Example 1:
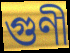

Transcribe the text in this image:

গুণী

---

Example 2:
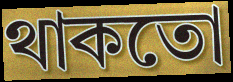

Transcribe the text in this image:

থাকতো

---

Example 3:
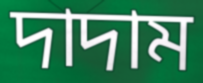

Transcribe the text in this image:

দাদাম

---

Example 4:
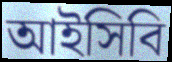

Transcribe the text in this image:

আইসিবি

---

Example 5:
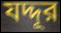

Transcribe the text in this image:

যদ্দূর